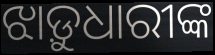
ଝାଡ଼ୁଧାରୀଙ୍କ